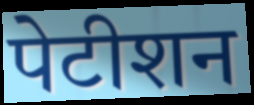
पेटीशन